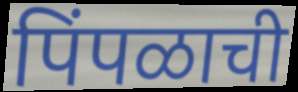
पिंपळाची